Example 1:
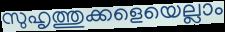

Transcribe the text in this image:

സുഹൃത്തുക്കളെയെല്ലാം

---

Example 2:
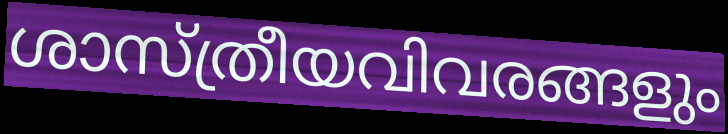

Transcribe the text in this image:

ശാസ്ത്രീയവിവരങ്ങളും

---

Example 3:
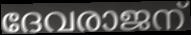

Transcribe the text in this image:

ദേവരാജന്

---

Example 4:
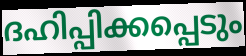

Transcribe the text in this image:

ദഹിപ്പിക്കപ്പെടും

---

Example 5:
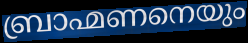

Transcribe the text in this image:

ബ്രാഹ്മണനെയും